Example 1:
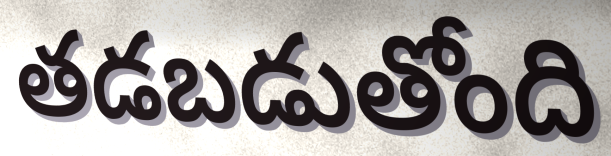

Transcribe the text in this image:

తడబడుతోంది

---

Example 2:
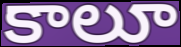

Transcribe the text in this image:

కాలూ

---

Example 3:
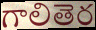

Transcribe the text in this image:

గాలితెర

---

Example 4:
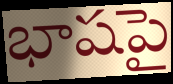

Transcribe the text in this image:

భాషపై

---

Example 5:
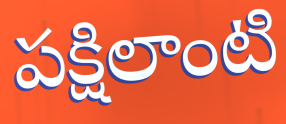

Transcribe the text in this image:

పక్షిలాంటి